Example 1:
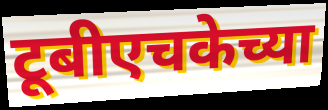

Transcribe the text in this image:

टूबीएचकेच्या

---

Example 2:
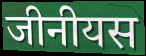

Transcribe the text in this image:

जीनीयस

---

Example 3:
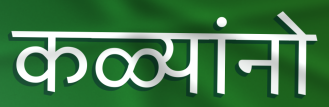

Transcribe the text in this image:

कळ्यांनो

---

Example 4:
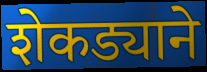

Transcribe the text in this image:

शेकड्याने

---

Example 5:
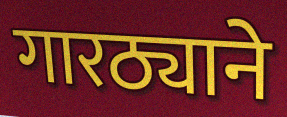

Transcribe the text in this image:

गारठ्याने